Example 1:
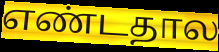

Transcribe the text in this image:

எண்டதால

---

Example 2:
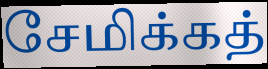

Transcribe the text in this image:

சேமிக்கத்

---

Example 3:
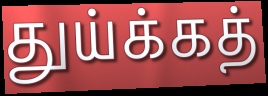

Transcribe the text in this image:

துய்க்கத்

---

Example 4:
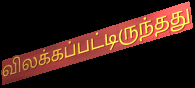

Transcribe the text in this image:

விலக்கப்பட்டிருந்தது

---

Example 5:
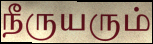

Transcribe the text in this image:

நீருயரும்